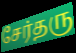
சேர்தரு